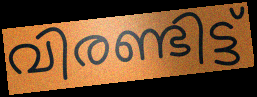
വിരണ്ടിട്ട്